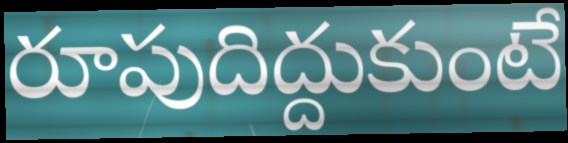
రూపుదిద్దుకుంటే